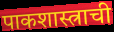
पाकशास्त्राची